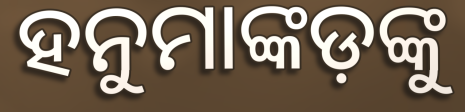
ହନୁମାଙ୍କଡ଼ଙ୍କୁ